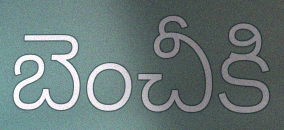
బెంచీకి